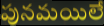
పునమయిలే